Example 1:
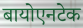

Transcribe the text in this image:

बायोएनटेक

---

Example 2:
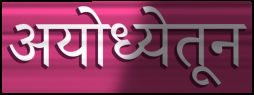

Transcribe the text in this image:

अयोध्येतून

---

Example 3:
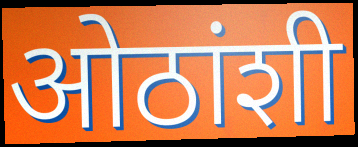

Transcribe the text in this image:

ओठांशी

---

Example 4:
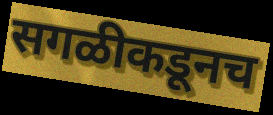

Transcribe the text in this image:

सगळीकडूनच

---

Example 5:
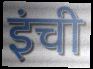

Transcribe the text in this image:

इंची